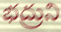
భద్రుని